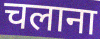
चलाना